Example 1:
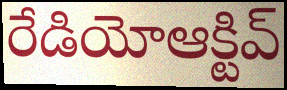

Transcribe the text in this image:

రేడియోఆక్టివ్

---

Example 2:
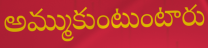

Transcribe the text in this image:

అమ్ముకుంటుంటారు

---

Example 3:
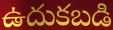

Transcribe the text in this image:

ఉదుకబడి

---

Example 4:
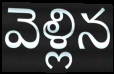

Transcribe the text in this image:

వెళ్లిన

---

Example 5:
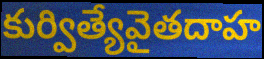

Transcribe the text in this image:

కుర్విత్యేవైతదాహ